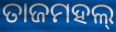
ତାଜମହଲ୍